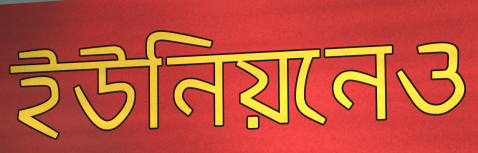
ইউনিয়নেও